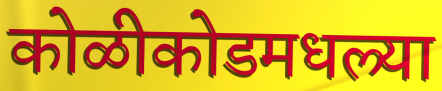
कोळीकोडमधल्या